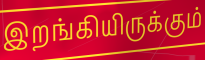
இறங்கியிருக்கும்